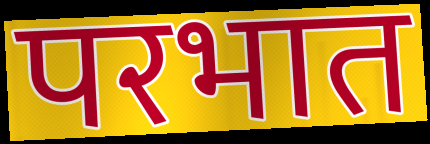
परभात